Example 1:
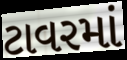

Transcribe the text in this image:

ટાવરમાં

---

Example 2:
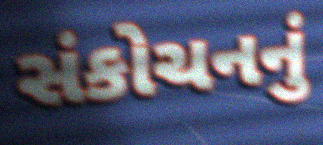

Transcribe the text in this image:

સંકોચનનું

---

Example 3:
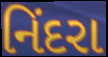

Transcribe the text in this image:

નિંદરા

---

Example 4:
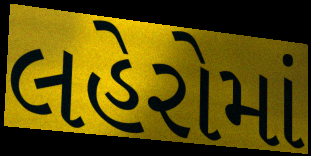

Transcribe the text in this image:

લહેરોમાં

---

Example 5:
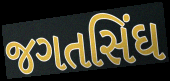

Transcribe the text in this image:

જગતસિંઘ